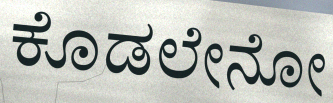
ಕೊಡಲೇನೋ